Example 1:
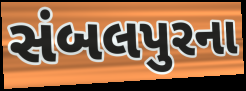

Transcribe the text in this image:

સંબલપુરના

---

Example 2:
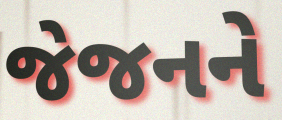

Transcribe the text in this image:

જેજનને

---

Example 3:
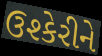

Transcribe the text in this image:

ઉશ્કેરીને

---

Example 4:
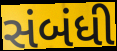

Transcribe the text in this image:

સંબંધી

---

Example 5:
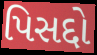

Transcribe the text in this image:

પિસદ્દો